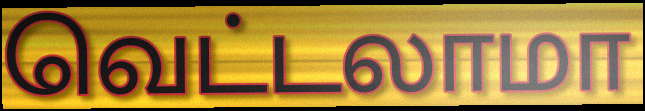
வெட்டலாமா